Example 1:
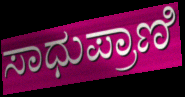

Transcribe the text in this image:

ಸಾಧುಪ್ರಾಣಿ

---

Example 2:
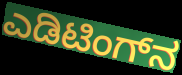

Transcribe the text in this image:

ಎಡಿಟಿಂಗ್‌ನ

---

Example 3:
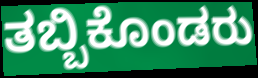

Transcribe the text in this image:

ತಬ್ಬಿಕೊಂಡರು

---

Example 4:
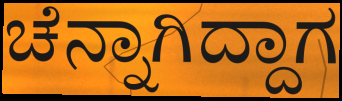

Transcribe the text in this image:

ಚೆನ್ನಾಗಿದ್ದಾಗ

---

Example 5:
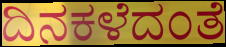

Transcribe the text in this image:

ದಿನಕಳೆದಂತೆ